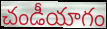
చండీయాగం